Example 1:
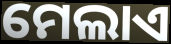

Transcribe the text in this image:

ମେଲାଏ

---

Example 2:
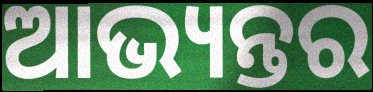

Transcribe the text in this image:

ଆଭ୍ୟନ୍ତର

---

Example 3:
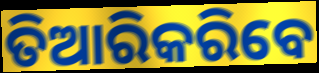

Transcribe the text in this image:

ତିଆରିକରିବେ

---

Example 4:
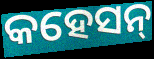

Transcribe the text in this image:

କହେସନ୍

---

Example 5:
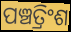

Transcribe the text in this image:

ପଞ୍ଚତ୍ରିଂଶ